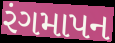
રંગમાપન